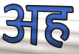
अह